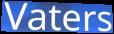
Vaters